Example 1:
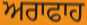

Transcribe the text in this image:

ਅਰਾਫਾਹ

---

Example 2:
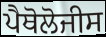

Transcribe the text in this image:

ਪੈਥੋਲੋਜੀਸ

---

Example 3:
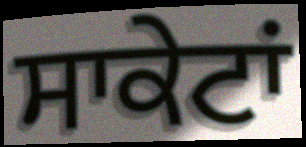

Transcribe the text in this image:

ਸਾਕੇਟਾਂ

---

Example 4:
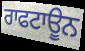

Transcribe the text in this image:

ਰਾਫਟਾਊਨ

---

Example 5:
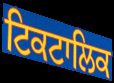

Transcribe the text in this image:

ਟਿਕਟਾਲਿਕ